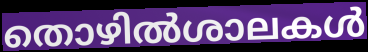
തൊഴിൽശാലകൾ